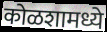
कोळशामध्ये